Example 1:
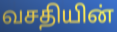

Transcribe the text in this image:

வசதியின்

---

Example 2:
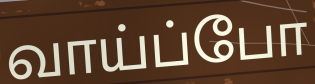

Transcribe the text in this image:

வாய்ப்போ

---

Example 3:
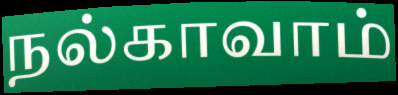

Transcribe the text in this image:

நல்காவாம்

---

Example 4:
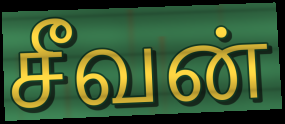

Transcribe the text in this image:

சீவன்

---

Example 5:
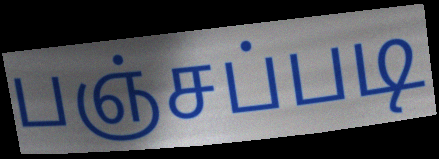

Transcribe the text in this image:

பஞ்சப்படி